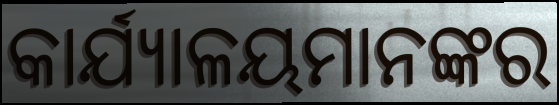
କାର୍ଯ୍ୟାଳୟମାନଙ୍କର